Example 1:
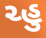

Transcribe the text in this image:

ચ્હુ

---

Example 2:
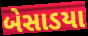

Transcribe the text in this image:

બેસાડયા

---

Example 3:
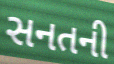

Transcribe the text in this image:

સનતની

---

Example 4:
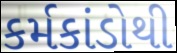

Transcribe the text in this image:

કર્મકાંડોથી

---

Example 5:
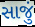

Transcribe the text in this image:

સાજું